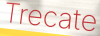
Trecate